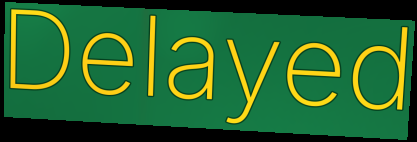
Delayed